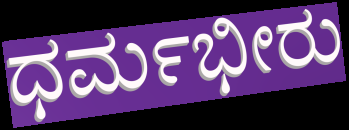
ಧರ್ಮಭೀರು